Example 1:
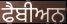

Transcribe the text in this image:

ਫੈਬੀਅਨ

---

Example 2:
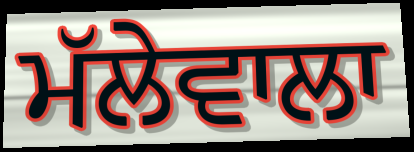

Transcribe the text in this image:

ਮੱਲੇਵਾਲਾ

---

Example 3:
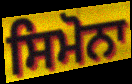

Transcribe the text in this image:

ਸਿਮੋਨਾ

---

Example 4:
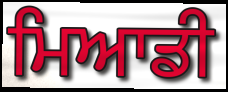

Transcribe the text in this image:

ਮਿਆਡੀ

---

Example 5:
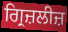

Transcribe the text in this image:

ਗ੍ਰਿਜ਼ਲੀਜ਼